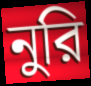
নুরি